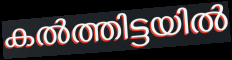
കൽത്തിട്ടയിൽ